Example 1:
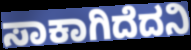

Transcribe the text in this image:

ಸಾಕಾಗಿದೆದನಿ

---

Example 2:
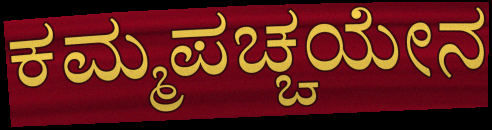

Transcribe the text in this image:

ಕಮ್ಮಪಚ್ಚಯೇನ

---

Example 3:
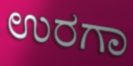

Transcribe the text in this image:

ಉರಗಾ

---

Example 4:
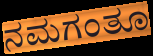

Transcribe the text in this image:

ನಮಗಂತೂ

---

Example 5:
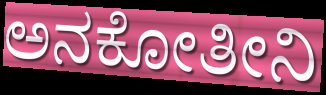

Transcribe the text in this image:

ಅನಕೋತೀನಿ